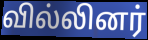
வில்லினர்